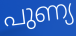
പുണ്യ